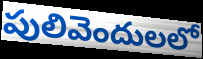
పులివెందులలో